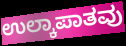
ಉಲ್ಕಾಪಾತವು